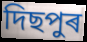
দিছপুৰ